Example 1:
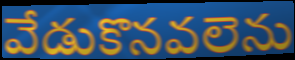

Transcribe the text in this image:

వేడుకొనవలెను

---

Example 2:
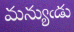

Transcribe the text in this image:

మన్యుఁడు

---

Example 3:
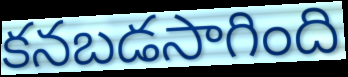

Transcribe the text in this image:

కనబడసాగింది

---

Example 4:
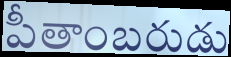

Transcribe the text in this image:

పీతాంబరుడు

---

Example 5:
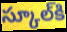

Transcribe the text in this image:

స్కూల్‌కి